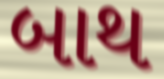
બાથ